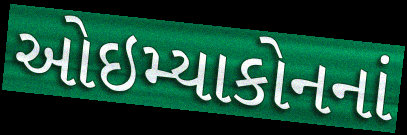
ઓઇમ્યાકોનનાં